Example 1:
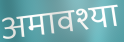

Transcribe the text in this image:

अमावश्या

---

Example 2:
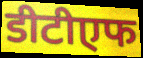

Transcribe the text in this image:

डीटीएफ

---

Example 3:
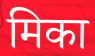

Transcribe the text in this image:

मिका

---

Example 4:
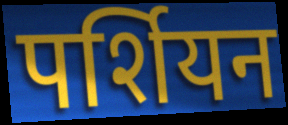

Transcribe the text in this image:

पर्शियन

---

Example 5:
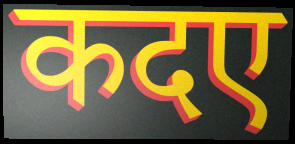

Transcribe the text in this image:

कदए